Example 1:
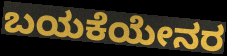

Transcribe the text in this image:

ಬಯಕೆಯೇನರ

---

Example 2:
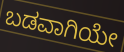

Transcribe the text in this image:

ಬಡವಾಗಿಯೇ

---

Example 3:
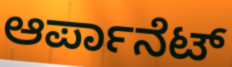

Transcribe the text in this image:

ಆರ್ಪಾನೆಟ್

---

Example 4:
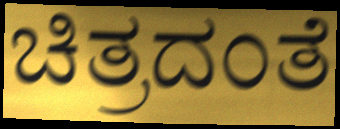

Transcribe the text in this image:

ಚಿತ್ರದಂತೆ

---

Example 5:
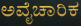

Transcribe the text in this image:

ಅವೈಚಾರಿಕ